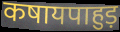
कषायपाहुड़